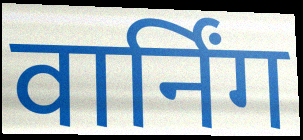
वार्निंग